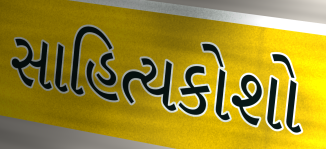
સાહિત્યકોશો